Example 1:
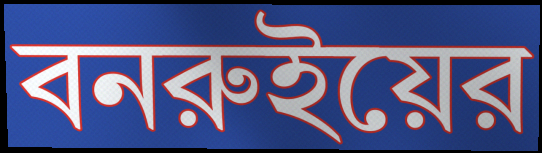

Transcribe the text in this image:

বনরুইয়ের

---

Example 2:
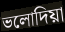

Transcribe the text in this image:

ভলোদিয়া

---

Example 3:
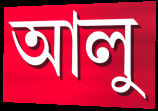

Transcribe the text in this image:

আলু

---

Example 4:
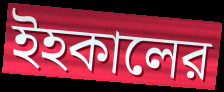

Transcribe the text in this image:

ইহকালের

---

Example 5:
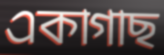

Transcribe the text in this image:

একাগাছ